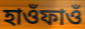
হাওঁফাওঁ